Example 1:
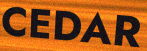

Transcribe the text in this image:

CEDAR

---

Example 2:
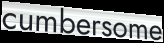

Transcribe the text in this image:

cumbersome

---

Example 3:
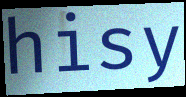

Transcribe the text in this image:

hisy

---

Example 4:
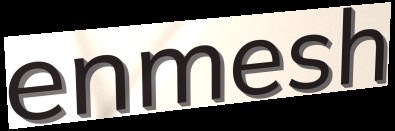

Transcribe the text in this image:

enmesh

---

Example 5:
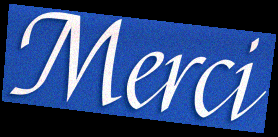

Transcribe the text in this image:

Merci